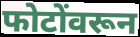
फोटोंवरून